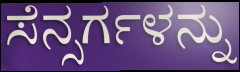
ಸೆನ್ಸರ್ಗಳನ್ನು